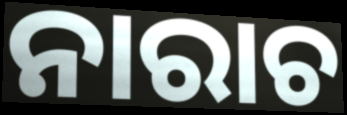
ନାରାଚ